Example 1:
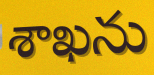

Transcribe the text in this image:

శాఖను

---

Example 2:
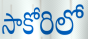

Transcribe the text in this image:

సాకోరిలో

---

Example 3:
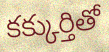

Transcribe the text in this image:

కక్కుర్తితో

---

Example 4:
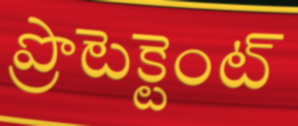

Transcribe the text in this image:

ప్రొటెక్టెంట్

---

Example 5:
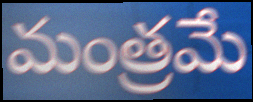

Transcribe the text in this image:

మంత్రమే